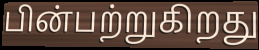
பின்பற்றுகிறது